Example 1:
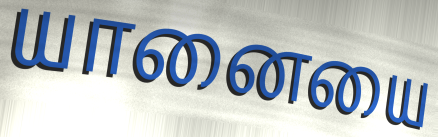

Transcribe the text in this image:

யானையை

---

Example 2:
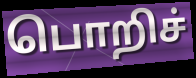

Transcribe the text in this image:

பொறிச்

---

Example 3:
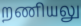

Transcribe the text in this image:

றணியலு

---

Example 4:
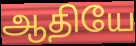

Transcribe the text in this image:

ஆதியே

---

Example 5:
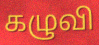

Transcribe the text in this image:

கழுவி